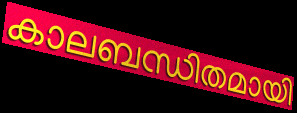
കാലബന്ധിതമായി